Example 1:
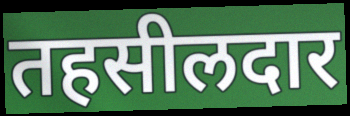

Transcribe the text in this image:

तहसीलदार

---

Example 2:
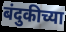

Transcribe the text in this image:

बंदुकीच्या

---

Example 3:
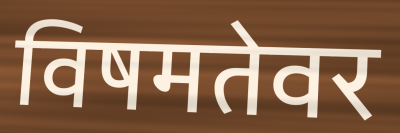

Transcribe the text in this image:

विषमतेवर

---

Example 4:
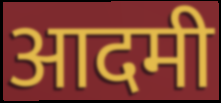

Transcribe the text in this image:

आदमी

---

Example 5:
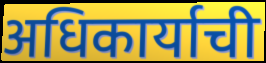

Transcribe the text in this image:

अधिकार्याची